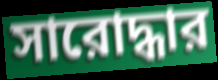
সারোদ্ধার